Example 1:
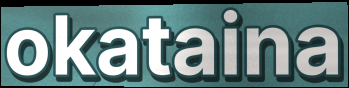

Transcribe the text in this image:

okataina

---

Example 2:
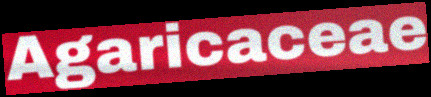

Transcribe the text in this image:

Agaricaceae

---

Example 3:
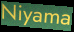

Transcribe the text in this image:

Niyama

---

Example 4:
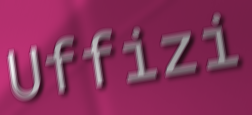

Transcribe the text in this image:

Uffizi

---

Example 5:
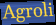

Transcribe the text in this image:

Agroli